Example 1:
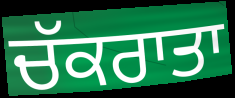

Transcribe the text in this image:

ਚੱਕਰਾਤਾ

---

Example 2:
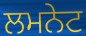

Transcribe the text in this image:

ਲਮਨੇਟ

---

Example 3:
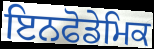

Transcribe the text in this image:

ਇਨਫੋਡੇਮਿਕ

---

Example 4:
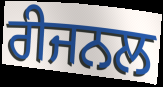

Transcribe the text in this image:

ਰੀਜਨਲ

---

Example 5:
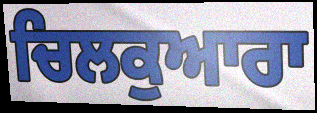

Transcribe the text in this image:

ਚਿਲਕੁਆਰਾ